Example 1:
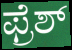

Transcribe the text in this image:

ಫ್ರೆಶ್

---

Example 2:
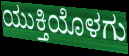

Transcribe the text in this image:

ಯುಕ್ತಿಯೊಳಗು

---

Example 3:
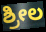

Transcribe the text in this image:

ಶ್ರೀಲ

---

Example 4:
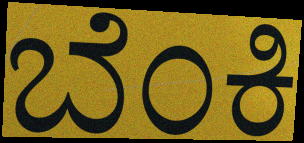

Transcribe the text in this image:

ಬೆಂಕಿ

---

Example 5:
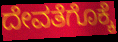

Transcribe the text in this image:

ದೇವತೆಗೊಕ್ಕೆ